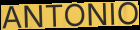
ANTONIO